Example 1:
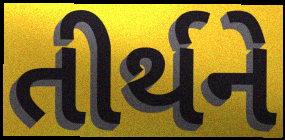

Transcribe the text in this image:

તીર્થને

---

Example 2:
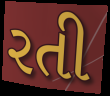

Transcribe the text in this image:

રતી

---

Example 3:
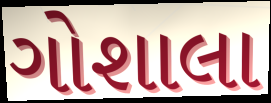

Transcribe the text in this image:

ગોશાલા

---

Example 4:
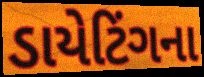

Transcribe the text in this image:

ડાયેટિંગના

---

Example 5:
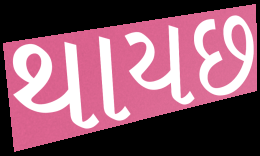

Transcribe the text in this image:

થાયછ